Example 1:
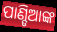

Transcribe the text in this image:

ପାଣ୍ଡିଆଙ୍କ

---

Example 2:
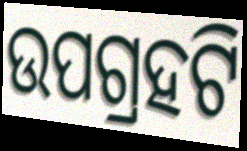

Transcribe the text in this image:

ଉପଗ୍ରହଟି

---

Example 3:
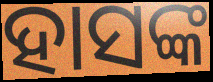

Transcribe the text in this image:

ହାସଙ୍କ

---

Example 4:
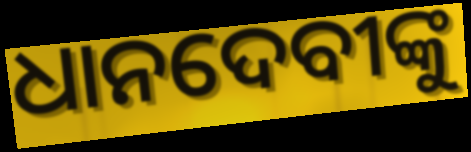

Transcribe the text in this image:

ଧାନଦେବୀଙ୍କୁ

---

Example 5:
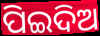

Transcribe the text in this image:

ପିଇଦିଅ